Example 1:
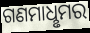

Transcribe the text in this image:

ଗଣମାଧୢମର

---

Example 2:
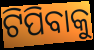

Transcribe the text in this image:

ଟିପିବାକୁ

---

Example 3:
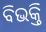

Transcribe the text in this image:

ବିଭକ୍ତି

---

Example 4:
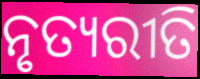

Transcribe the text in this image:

ନୃତ୍ୟରୀତି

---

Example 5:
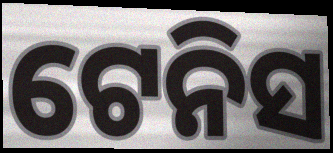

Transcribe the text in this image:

ଟେନିସ